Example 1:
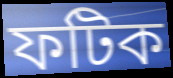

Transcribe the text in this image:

ফটিক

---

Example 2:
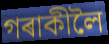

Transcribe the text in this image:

গৰাকীলৈ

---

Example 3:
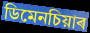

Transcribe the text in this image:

ডিমেনচিয়াৰ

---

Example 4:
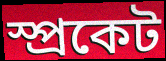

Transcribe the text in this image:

স্প্ৰকেট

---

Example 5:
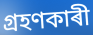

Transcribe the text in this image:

গ্ৰহণকাৰী